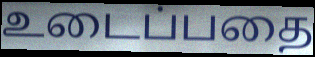
உடைப்பதை